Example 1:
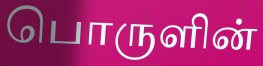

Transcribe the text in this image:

பொருளின்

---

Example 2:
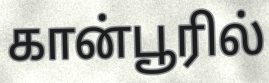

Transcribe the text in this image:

கான்பூரில்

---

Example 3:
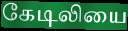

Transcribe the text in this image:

கேடிலியை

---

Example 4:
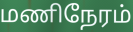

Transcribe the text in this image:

மணிநேரம்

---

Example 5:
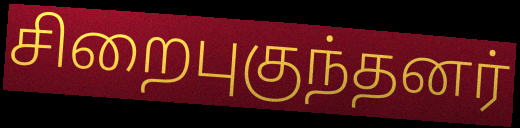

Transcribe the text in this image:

சிறைபுகுந்தனர்